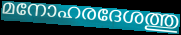
മനോഹരദേശത്തു